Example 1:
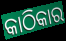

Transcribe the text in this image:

କାଠିକାର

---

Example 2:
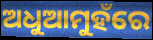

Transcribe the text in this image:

ଅଧୁଆମୁହଁରେ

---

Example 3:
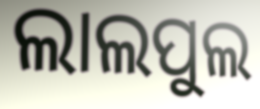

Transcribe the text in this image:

ଲାଲପୁଲ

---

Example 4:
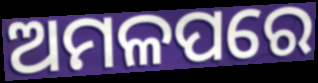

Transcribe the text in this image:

ଅମଳପରେ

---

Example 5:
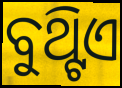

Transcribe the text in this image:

ବୁଥ୍ଟିଏ